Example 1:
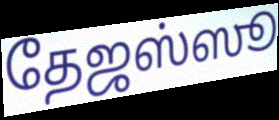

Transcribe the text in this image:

தேஜஸ்ஸூ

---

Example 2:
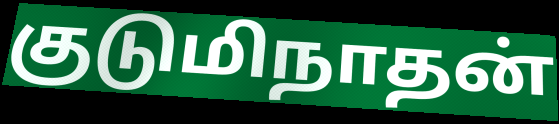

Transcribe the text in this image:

குடுமிநாதன்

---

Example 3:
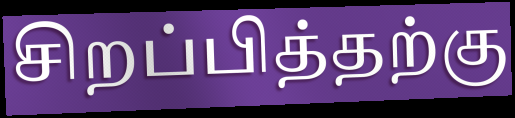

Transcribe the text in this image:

சிறப்பித்தற்கு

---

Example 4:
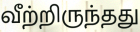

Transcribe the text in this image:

வீற்றிருந்தது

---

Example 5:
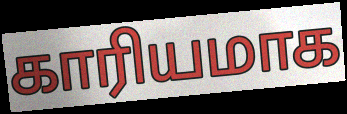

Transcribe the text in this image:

காரியமாக